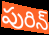
పురిన్